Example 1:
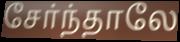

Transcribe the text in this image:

சேர்ந்தாலே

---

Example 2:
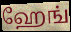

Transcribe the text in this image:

ஹேங்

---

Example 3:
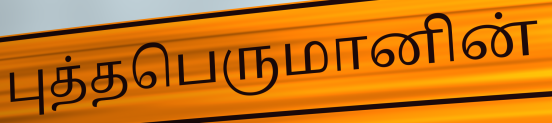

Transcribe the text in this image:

புத்தபெருமானின்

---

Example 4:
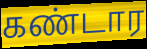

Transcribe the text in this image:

கண்டார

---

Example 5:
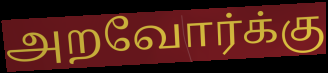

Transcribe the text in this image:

அறவோர்க்கு